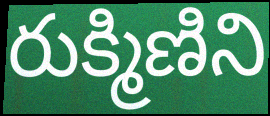
రుక్మిణిని